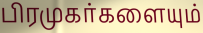
பிரமுகர்களையும்